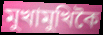
মুখামুখিকৈ